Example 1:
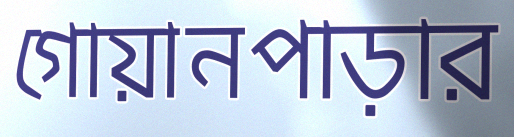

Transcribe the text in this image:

গোয়ানপাড়ার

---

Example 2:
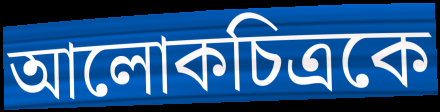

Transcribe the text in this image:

আলোকচিত্রকে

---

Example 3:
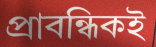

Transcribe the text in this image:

প্রাবন্ধিকই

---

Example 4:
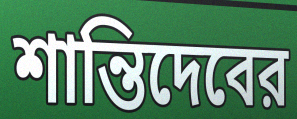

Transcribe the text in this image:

শান্তিদেবের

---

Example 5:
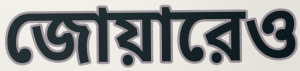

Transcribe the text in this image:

জোয়ারেও